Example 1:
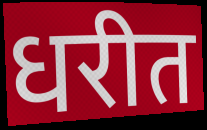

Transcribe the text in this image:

धरीत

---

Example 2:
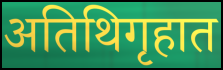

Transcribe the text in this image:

अतिथिगृहात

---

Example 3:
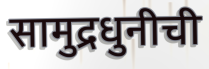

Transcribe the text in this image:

सामुद्रधुनीची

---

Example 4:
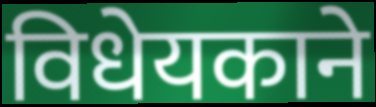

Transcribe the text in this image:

विधेयकाने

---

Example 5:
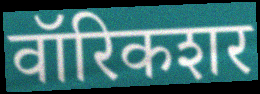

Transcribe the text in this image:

वॉरिकशर